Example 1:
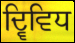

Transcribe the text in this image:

ਦ੍ਵਿਵਿਧ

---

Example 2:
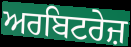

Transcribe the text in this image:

ਅਰਬਿਟਰੇਜ਼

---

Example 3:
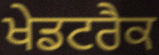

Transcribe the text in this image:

ਖੇਡਟਰੈਕ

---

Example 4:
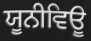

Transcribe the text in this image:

ਯੂਨੀਵਿਊ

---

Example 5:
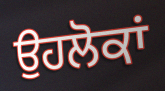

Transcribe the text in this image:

ਉਹਲੋਕਾਂ